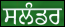
ਸਲੰਡਰ